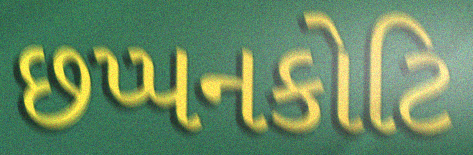
છપ્પનકોટિ